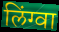
लिंग्वा